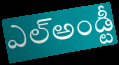
ఎల్అండ్టీ